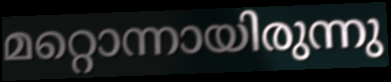
മറ്റൊന്നായിരുന്നു